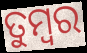
ତୁମ୍ବର